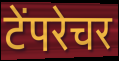
टेंपरेचर